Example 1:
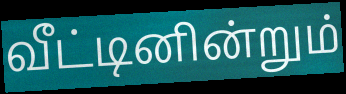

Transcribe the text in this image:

வீட்டினின்றும்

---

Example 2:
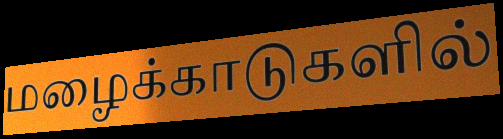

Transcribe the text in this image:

மழைக்காடுகளில்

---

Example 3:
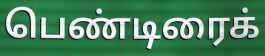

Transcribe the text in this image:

பெண்டிரைக்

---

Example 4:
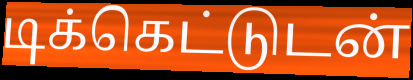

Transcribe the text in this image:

டிக்கெட்டுடன்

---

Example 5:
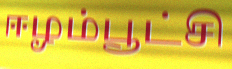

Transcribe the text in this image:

ஈழம்பூட்சி